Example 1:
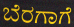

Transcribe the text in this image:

ಬೆರಗಾಗೆ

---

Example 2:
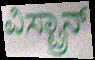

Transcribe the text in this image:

ವಿಸ್ಟ್ರಾನ್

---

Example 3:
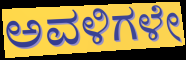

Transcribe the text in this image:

ಅವಳಿಗಳೇ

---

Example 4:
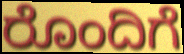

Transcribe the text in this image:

ರೊಂದಿಗೆ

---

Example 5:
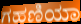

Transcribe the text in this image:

ಗಹಣಿಯಾ